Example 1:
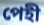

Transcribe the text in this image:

পেহী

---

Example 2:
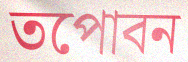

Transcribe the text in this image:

তপোবন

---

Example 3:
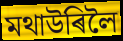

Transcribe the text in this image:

মথাউৰিলৈ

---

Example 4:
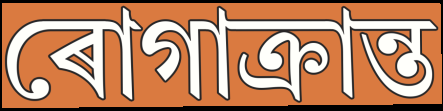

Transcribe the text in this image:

ৰোগাক্ৰান্ত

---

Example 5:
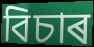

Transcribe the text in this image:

বিচাৰ